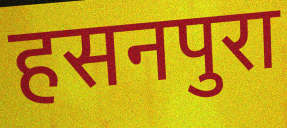
हसनपुरा